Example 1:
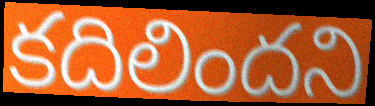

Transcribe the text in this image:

కదిలిందని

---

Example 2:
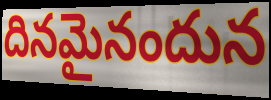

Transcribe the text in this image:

దినమైనందున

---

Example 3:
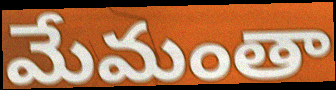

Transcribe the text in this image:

మేమంతా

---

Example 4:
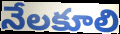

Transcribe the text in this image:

నేలకూలి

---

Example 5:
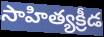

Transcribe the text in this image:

సాహిత్యక్రీడ